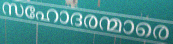
സഹോദരന്മാരെ